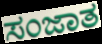
ಸಂಜಾತ